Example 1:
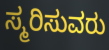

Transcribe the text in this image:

ಸ್ಮರಿಸುವರು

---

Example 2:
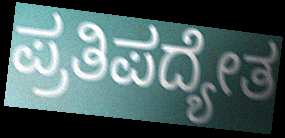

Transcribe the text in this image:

ಪ್ರತಿಪದ್ಯೇತ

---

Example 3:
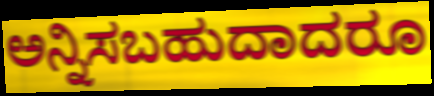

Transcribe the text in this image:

ಅನ್ನಿಸಬಹುದಾದರೂ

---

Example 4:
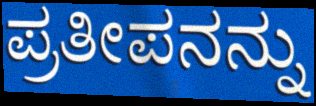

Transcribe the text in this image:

ಪ್ರತೀಪನನ್ನು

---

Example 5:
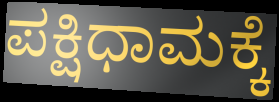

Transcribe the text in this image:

ಪಕ್ಷಿಧಾಮಕ್ಕೆ